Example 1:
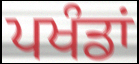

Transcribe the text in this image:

ਪਖੰਡਾਂ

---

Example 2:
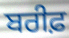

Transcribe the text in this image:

ਬਰੀਫ਼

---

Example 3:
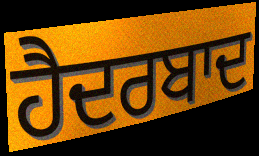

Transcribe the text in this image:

ਹੈਦਰਬਾਦ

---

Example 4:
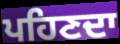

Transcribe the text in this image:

ਪਹਿਣਦਾ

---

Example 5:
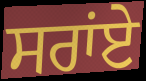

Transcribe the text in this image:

ਸਰਾਂਏ